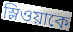
স্লিওয়াকে